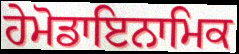
ਹੇਮੋਡਾਇਨਾਮਿਕ